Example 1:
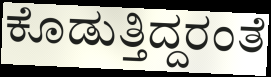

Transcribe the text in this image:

ಕೊಡುತ್ತಿದ್ದರಂತೆ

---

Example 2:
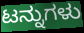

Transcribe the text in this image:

ಟನ್ನುಗಳು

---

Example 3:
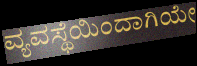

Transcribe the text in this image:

ವ್ಯವಸ್ಥೆಯಿಂದಾಗಿಯೇ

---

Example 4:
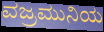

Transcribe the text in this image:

ವಜ್ರಮುನಿಯ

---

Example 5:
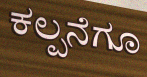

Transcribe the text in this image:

ಕಲ್ಪನೆಗೂ